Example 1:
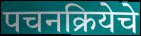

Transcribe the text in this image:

पचनक्रियेचे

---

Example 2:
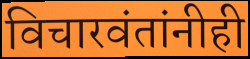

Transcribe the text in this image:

विचारवंतांनीही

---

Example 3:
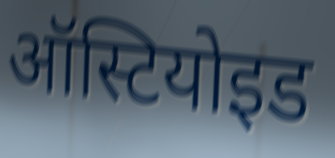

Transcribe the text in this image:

ऑस्टियोइड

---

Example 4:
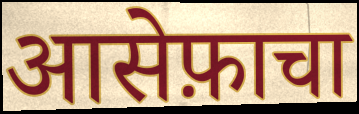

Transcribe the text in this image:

आसेफ़ाचा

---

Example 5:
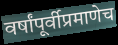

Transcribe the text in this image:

वर्षांपूर्वीप्रमाणेच